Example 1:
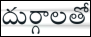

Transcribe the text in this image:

దుర్గాలతో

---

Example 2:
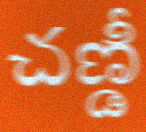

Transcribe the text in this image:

చణ్డీ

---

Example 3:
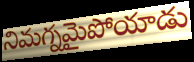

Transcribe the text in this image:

నిమగ్నమైపోయాడు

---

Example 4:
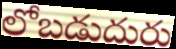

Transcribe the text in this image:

లోబడుదురు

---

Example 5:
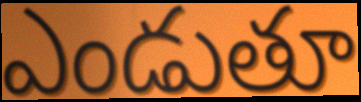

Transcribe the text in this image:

ఎండుతూ